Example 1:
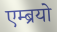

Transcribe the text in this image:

एम्ब्रयो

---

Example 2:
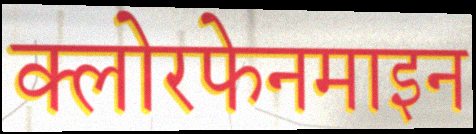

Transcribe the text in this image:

क्लोरफेनमाइन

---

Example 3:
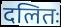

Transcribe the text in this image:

दलितः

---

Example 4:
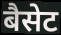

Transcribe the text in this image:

बैसेट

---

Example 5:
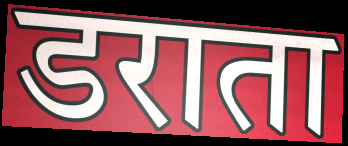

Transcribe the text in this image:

डराता